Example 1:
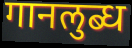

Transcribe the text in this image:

गानलुब्ध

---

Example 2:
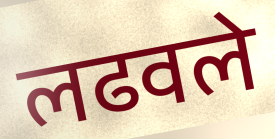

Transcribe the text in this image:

लढवले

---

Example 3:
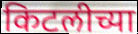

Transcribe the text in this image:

किटलीच्या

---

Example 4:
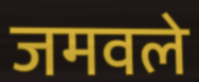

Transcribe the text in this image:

जमवले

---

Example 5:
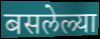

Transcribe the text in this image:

बसलेल्या